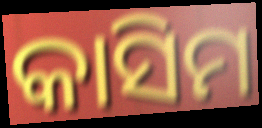
କାସିମ